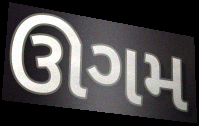
ઊગમ